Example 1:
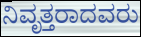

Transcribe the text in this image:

ನಿವೃತ್ತರಾದವರು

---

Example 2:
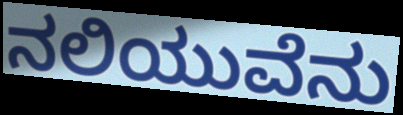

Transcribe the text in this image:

ನಲಿಯುವೆನು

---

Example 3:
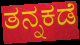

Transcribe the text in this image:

ತನ್ನಕಡೆ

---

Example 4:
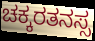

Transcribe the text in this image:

ಚಕ್ಕರತನಸ್ಸ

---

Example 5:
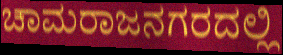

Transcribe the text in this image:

ಚಾಮರಾಜನಗರದಲ್ಲಿ